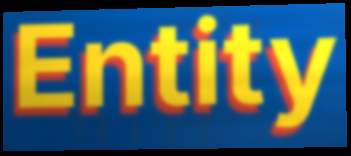
Entity